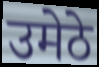
उमेठे